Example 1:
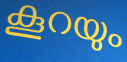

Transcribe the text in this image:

കൂറയും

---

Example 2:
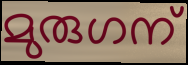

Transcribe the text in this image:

മുരുഗന്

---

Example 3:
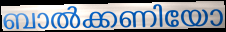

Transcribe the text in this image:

ബാൽക്കണിയോ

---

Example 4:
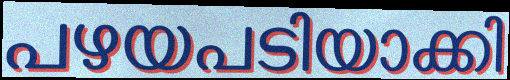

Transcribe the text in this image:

പഴയപടിയാക്കി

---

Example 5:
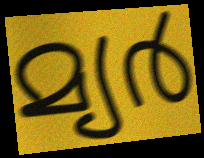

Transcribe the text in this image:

മ്യർ